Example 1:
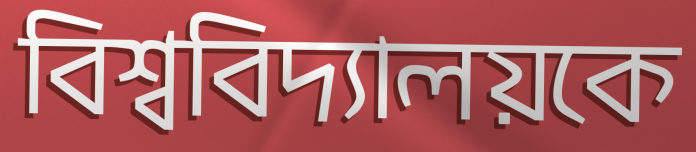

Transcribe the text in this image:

বিশ্ববিদ্যালয়কে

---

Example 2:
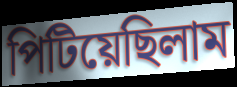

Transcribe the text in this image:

পিটিয়েছিলাম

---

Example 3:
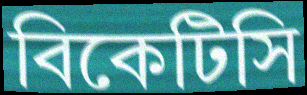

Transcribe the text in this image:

বিকেটিসি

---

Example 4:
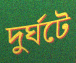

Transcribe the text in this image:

দুর্ঘটে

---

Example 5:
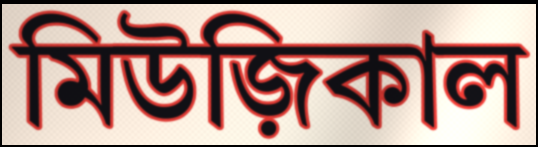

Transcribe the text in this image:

মিউজ়িকাল